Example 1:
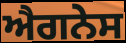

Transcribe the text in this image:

ਐਗਨੇਸ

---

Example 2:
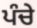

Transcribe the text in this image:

ਪੰਚੇ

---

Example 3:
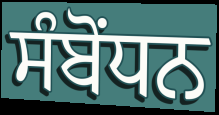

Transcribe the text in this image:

ਸੰਬੋੰਧਨ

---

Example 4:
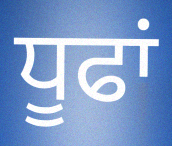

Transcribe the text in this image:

ਧੂਫਾਂ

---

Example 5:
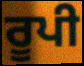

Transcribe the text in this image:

ਰੂਪੀ